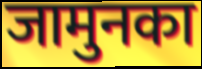
जामुनका